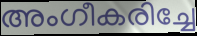
അംഗീകരിച്ചേ